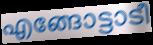
എങ്ങോട്ടാടീ